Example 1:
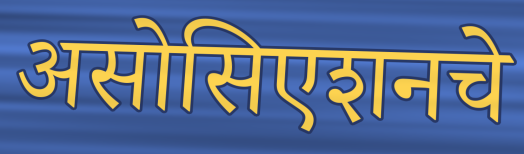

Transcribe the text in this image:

असोसिएशनचे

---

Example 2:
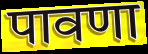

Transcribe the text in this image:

पावणा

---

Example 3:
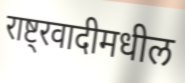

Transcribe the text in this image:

राष्ट्रवादीमधील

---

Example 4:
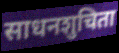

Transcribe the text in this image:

साधनशुचिता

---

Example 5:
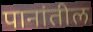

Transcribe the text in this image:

पानांतील